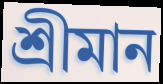
শ্ৰীমান